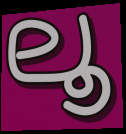
ലൂ